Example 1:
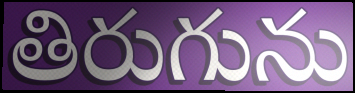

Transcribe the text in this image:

తిరుగును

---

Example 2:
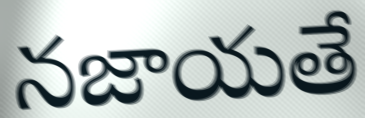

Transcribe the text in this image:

నజాయతే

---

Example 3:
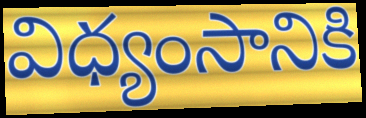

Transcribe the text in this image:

విధ్యంసానికి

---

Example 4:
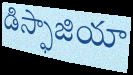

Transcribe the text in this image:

డిస్ఫాజియా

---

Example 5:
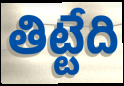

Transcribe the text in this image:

తిట్టేది